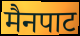
मैनपाट